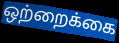
ஒற்றைக்கை